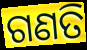
ଗଣତି